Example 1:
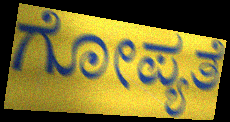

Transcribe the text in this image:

ಗೋಪ್ಯತೆ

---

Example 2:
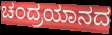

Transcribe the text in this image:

ಚಂದ್ರಯಾನದ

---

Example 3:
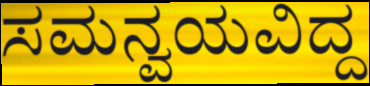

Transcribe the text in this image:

ಸಮನ್ವಯವಿದ್ದ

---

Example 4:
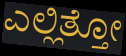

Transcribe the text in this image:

ಎಲ್ಲಿತ್ತೋ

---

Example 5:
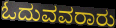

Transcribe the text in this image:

ಓದುವವರಾರು